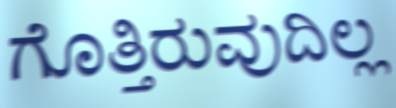
ಗೊತ್ತಿರುವುದಿಲ್ಲ